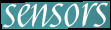
sensors